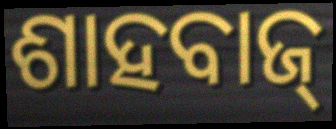
ଶାହବାଜ୍